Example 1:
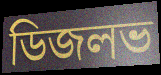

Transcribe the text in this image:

ডিজলভ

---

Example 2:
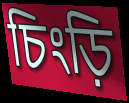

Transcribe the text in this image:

চিংড়ি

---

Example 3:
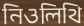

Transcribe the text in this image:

নিওলিথি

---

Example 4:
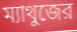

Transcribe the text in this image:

ম্যাথুজের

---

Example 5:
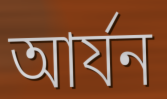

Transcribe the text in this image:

আর্যন